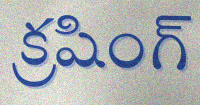
క్రషింగ్